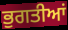
ਭੁਗਤੀਆਂ